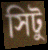
সিটু